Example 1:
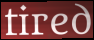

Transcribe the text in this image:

tired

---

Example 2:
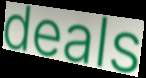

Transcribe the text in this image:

deals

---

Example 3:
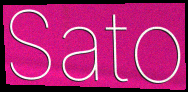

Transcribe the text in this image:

Sato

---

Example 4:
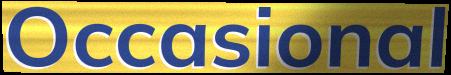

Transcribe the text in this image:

Occasional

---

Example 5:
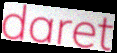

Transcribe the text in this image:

daret